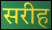
सरीह